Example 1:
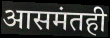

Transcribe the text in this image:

आसमंतही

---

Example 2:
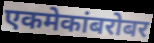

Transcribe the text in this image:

एकमेकांबरोबर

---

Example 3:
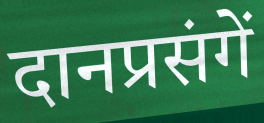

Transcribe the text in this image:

दानप्रसंगें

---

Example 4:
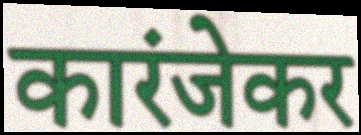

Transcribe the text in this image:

कारंजेकर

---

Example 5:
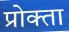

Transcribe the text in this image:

प्रोक्ता